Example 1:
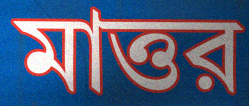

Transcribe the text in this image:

মাত্তর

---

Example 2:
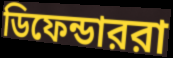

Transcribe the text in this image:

ডিফেন্ডাররা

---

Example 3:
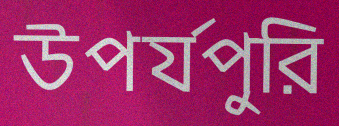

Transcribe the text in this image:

উপর্যপুরি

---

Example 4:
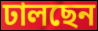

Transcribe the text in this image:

ঢালছেন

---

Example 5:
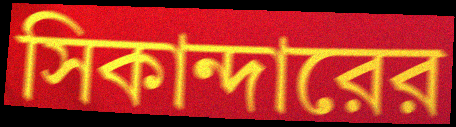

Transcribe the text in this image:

সিকান্দারের